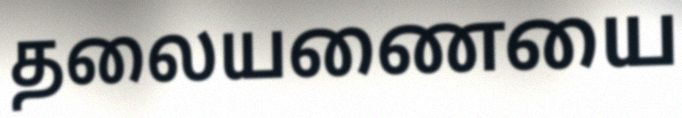
தலையணையை